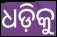
ଧଡ଼ିକୁ